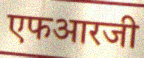
एफआरजी